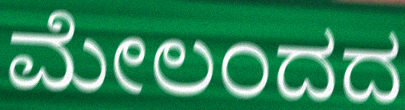
ಮೇಲಂದದ